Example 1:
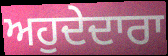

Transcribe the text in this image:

ਅਹੁਦੇਦਾਰਾ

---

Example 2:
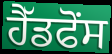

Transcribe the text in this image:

ਹੈੱਡਫੋਂਸ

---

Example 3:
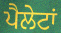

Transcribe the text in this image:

ਪੈਲੇਟਾਂ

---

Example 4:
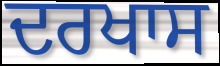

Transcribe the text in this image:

ਦਰਖਾਸ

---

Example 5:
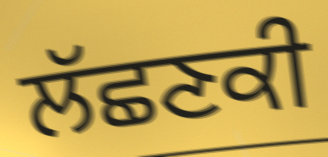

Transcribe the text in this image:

ਲੱਛਣਕੀ